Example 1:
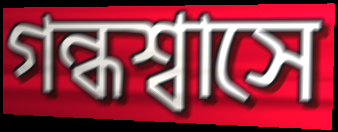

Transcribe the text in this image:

গন্ধশ্বাসে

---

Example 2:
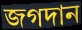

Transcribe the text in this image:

জগদান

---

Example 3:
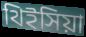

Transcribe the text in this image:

থিইসিয়া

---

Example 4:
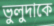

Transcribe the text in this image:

ভুলুদাকে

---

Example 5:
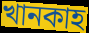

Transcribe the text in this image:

খানকাহ